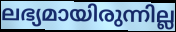
ലഭ്യമായിരുന്നില്ല